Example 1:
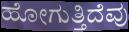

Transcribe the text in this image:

ಹೋಗುತ್ತಿದೆವು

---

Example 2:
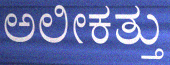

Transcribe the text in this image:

ಅಲೀಕತ್ತು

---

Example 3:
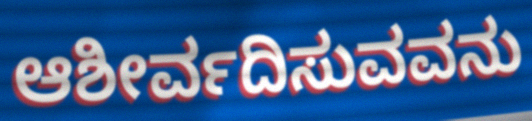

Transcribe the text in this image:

ಆಶೀರ್ವದಿಸುವವನು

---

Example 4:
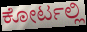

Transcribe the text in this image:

ಕೋರ್ಟಲ್ಲಿ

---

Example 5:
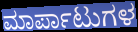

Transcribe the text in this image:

ಮಾರ್ಪಾಟುಗಳ